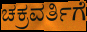
ಚಕ್ರವರ್ತಿಗೆ